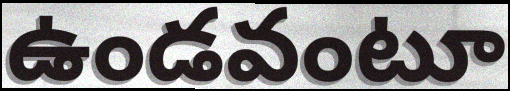
ఉండవంటూ